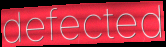
defected